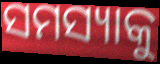
ସମସ୍ୟାକୁ